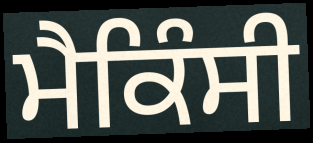
ਮੈਕਿੰਸੀ